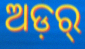
ଅଡ଼ର୍